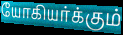
யோகியர்க்கும்